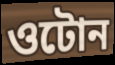
ওটোন